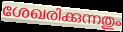
ശേഖരിക്കുന്നതും